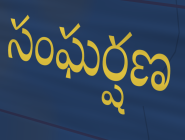
సంఘర్షణ